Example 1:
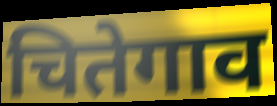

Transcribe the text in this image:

चितेगाव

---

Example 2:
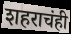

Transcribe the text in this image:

शहराचंही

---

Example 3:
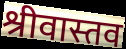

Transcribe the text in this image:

श्रीवास्तव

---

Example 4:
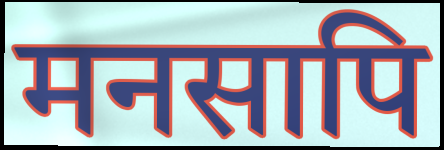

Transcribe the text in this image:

मनसापि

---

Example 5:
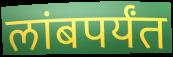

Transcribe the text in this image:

लांबपर्यंत